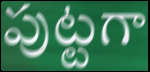
పుట్టగా